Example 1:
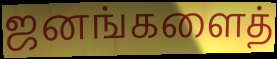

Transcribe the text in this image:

ஜனங்களைத்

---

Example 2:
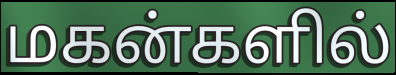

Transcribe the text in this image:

மகன்களில்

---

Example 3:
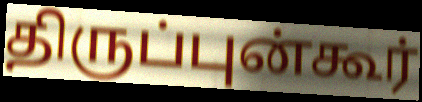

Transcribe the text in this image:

திருப்புன்கூர்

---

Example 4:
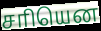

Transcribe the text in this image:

சரியென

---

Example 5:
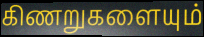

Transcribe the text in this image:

கிணறுகளையும்